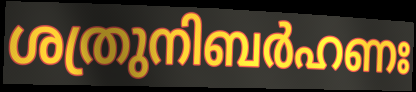
ശത്രുനിബർഹണഃ